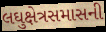
લઘુક્ષેત્રસમાસની